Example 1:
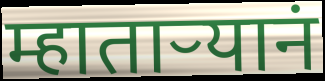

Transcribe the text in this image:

म्हाताऱ्यानं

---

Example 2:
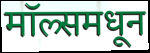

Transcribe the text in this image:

मॉल्समधून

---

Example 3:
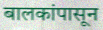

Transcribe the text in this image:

बालकांपासून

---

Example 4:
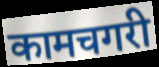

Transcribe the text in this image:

कामचगरी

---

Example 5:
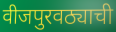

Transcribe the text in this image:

वीजपुरवठ्याची